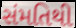
સંમતિથી